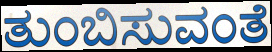
ತುಂಬಿಸುವಂತೆ